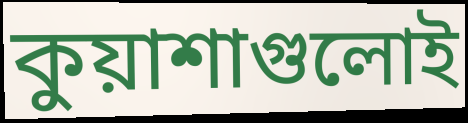
কুয়াশাগুলোই